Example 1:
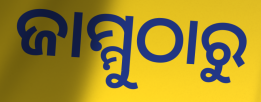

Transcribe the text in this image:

ଜାମ୍ମୁଠାରୁ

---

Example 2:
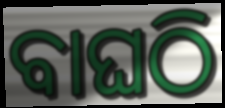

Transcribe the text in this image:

ବାଘଠି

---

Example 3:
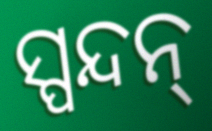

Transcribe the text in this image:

ସ୍ପନ୍ଦନ୍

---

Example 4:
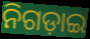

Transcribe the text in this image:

ନିଗଡ଼ାଇ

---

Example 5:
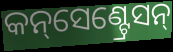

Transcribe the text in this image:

କନ୍‌ସେଣ୍ଟ୍ରେସନ୍